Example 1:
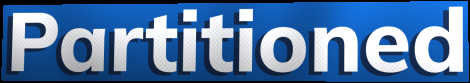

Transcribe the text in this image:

Partitioned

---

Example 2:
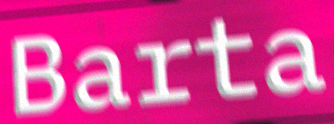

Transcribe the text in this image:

Barta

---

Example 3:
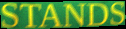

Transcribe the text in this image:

STANDS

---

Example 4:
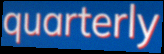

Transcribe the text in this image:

quarterly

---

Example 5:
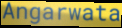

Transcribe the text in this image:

Angarwata